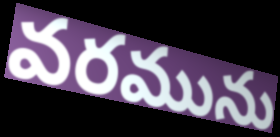
వరమును